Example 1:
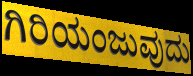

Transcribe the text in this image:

ಗಿರಿಯಂಜುವುದು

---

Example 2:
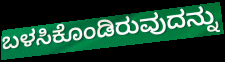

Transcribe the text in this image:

ಬಳಸಿಕೊಂಡಿರುವುದನ್ನು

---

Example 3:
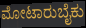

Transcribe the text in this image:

ಮೋಟಾರುಬೈಕು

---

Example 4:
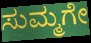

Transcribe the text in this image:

ಸುಮ್ಮಗೇ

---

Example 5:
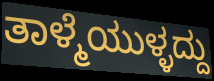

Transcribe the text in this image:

ತಾಳ್ಮೆಯುಳ್ಳದ್ದು